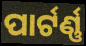
ପାର୍ଟର୍ଣ୍ଣ